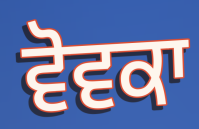
ਵੋਵਕਾ